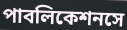
পাবলিকেশনসে